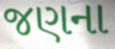
જણના